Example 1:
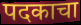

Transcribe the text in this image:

पदकाचा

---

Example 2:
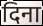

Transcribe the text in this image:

दिना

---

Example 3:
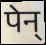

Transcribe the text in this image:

पेन्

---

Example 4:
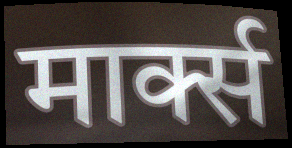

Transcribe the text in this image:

मार्क्स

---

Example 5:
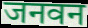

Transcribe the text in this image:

जनवन